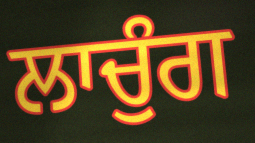
ਲਾਚੁੰਗ